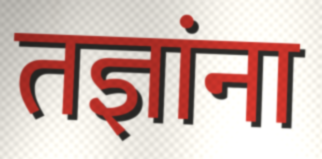
तज्ञांना